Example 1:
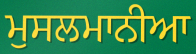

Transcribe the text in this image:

ਮੁਸਲਮਾਨੀਆ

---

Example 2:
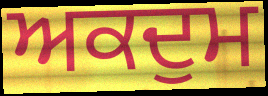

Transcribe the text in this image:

ਅਕਦੁਮ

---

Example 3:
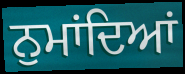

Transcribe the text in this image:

ਨੁਮਾਂਦਿਆਂ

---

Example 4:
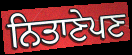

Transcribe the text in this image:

ਨਿਤਾਣੇਪਣ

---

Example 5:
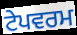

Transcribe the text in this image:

ਟੇਪਵਰਮ